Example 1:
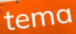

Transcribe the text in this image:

tema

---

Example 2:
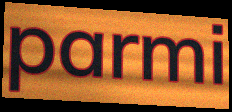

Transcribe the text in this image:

parmi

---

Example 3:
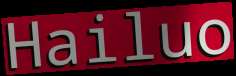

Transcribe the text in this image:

Hailuo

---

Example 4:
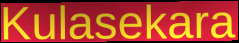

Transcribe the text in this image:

Kulasekara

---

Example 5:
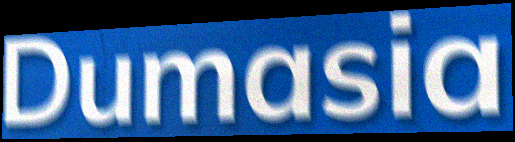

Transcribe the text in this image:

Dumasia